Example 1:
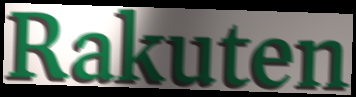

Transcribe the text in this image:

Rakuten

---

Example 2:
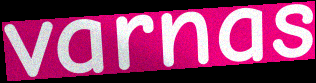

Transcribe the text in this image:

varnas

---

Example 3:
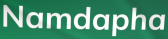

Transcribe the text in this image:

Namdapha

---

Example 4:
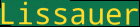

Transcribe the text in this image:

Lissauer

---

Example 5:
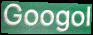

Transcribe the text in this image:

Googol